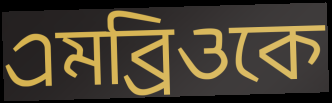
এমব্রিওকে